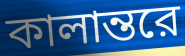
কালান্তরে